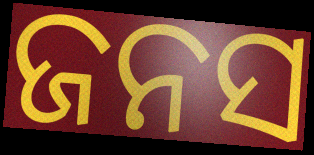
ଜନସ